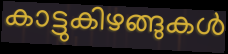
കാട്ടുകിഴങ്ങുകൾ